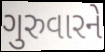
ગુરુવારને